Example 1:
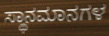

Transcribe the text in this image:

ಸ್ಥಾನಮಾನಗಳ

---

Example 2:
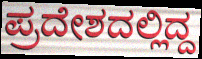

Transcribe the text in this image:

ಪ್ರದೇಶದಲ್ಲಿದ್ದ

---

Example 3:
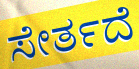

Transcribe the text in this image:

ಸೇರ್ತದೆ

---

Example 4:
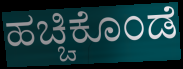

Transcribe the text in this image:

ಹಚ್ಚಿಕೊಂಡೆ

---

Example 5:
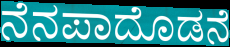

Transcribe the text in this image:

ನೆನಪಾದೊಡನೆ